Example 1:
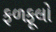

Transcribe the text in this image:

ફળફૂલો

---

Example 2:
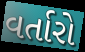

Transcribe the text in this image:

વર્તારો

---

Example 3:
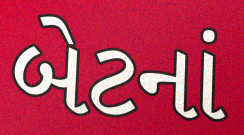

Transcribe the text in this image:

બેટનાં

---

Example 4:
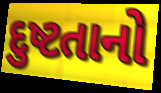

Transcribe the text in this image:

દુષ્ટતાનો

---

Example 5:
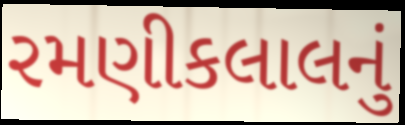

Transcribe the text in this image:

રમણીકલાલનું